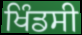
ਖਿੰਡਸੀ